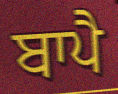
ਬਾਪੈ